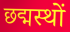
छद्मस्थों